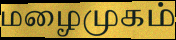
மழைமுகம்